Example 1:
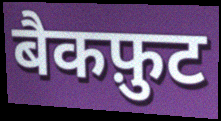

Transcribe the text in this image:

बैकफ़ुट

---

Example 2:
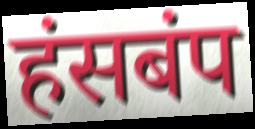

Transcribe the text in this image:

हंसबंप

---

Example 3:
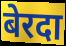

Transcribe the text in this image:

बेरदा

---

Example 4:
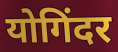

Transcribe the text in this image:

योगिंदर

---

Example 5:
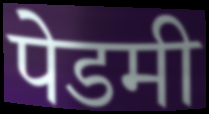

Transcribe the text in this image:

पेडमी